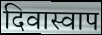
दिवास्वाप